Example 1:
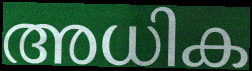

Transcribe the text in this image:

അധിക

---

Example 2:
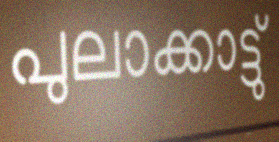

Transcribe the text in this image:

പുലാക്കാട്ടു്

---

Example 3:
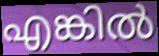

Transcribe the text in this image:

എങ്കിൽ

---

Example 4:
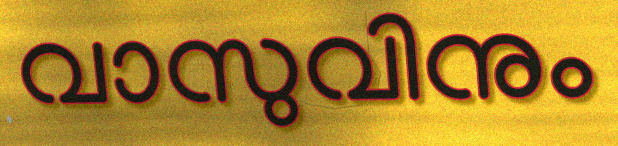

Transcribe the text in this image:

വാസുവിനും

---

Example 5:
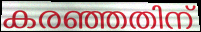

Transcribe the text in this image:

കരഞ്ഞതിന്